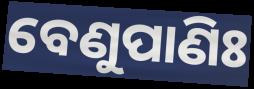
ବେଣୁପାଣିଃ